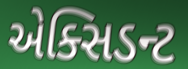
એક્સિડન્ટ